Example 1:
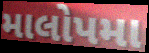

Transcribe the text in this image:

માલોપમા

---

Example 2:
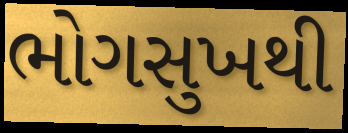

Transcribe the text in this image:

ભોગસુખથી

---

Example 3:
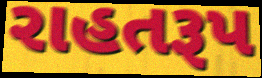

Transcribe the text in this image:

રાહતરૂપ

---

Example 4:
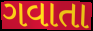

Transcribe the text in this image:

ગવાતા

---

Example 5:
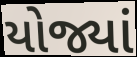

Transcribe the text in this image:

યોજ્યાં